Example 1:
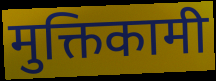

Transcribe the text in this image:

मुक्तिकामी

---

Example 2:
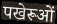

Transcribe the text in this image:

पखेरूओं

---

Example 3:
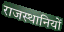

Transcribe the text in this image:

राजस्थानियों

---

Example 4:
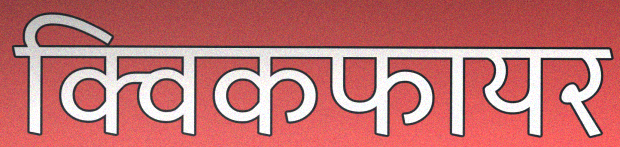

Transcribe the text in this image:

क्विकफायर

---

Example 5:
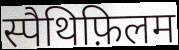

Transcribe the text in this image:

स्पैथिफ़िलम